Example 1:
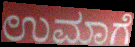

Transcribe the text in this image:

ಉಮಾಗೆ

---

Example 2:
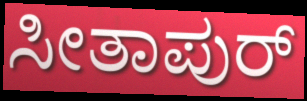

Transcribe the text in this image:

ಸೀತಾಪುರ್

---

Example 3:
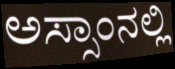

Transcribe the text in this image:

ಅಸ್ಸಾಂನಲ್ಲಿ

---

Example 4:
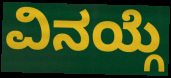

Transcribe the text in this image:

ವಿನಯ್ಗೆ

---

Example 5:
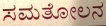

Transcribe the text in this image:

ಸಮತೋಲನ